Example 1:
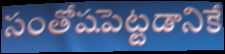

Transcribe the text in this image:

సంతోషపెట్టడానికే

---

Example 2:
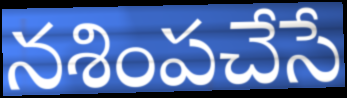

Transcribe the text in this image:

నశింపచేసే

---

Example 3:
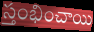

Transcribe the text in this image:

స్తంభించాయి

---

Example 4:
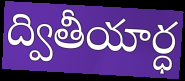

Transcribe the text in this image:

ద్వితీయార్ధ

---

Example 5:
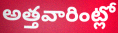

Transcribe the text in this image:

అత్తవారింట్లో